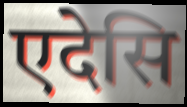
एदेसि